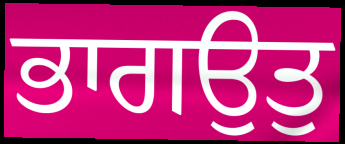
ਭਾਗਉਤੁ